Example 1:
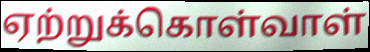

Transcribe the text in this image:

ஏற்றுக்கொள்வாள்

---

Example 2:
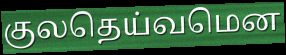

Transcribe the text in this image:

குலதெய்வமென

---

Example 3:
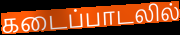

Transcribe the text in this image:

கடைப்பாடலில்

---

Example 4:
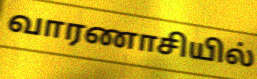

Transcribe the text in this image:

வாரணாசியில்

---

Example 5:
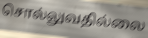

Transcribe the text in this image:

சொல்லுவதில்லை